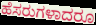
ಹೆಸರುಗಳಾದರೂ